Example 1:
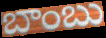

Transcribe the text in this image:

బాంబు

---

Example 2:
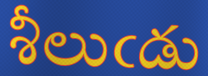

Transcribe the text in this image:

శీలుఁడు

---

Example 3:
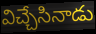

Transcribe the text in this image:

విచ్చేసినాడు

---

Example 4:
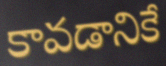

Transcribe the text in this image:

కావడానికే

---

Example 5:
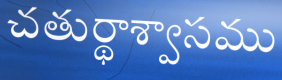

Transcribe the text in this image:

చతుర్థాశ్వాసము